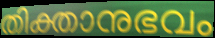
തിക്താനുഭവം